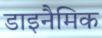
डाइनैमिक